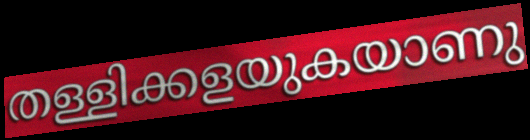
തള്ളിക്കളയുകയാണു